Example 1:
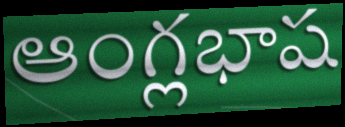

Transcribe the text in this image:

ఆంగ్లభాష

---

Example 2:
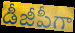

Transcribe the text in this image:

డీజీపీగా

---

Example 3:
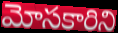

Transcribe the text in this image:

మోసకారిని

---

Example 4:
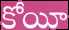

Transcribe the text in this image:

కోయీ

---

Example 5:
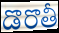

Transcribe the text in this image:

డొరొతీ